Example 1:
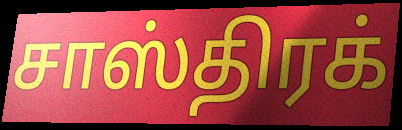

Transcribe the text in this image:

சாஸ்திரக்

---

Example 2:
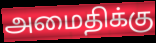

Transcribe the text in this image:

அமைதிக்கு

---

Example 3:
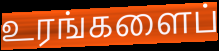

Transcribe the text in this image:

உரங்களைப்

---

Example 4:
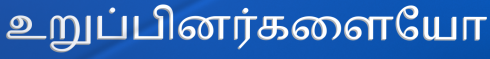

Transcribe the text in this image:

உறுப்பினர்களையோ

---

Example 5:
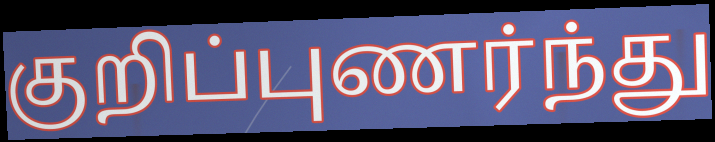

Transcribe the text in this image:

குறிப்புணர்ந்து